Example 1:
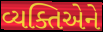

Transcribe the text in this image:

વ્યક્તિએને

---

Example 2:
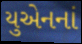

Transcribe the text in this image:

યુએનનાં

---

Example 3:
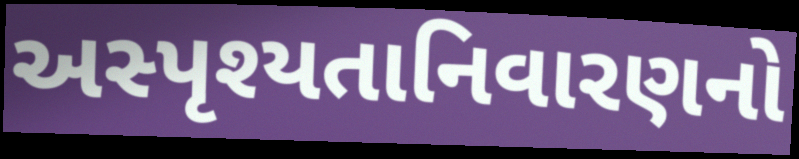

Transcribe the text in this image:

અસ્પૃશ્યતાનિવારણનો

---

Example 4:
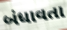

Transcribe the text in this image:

બંધાવતા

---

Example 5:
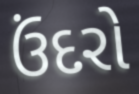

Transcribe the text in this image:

ઉંદરો